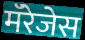
मॅरेजेस